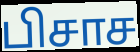
பிசாச